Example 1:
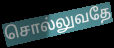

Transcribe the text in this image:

சொல்லுவதே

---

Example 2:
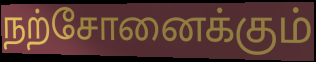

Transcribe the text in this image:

நற்சோனைக்கும்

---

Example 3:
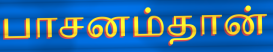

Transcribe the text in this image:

பாசனம்தான்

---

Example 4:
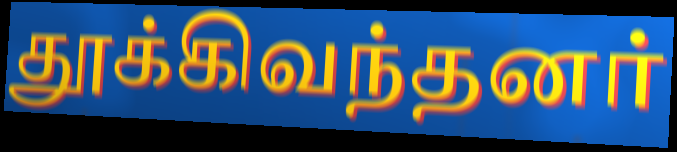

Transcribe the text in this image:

தூக்கிவந்தனர்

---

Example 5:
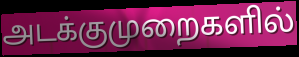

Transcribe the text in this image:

அடக்குமுறைகளில்